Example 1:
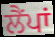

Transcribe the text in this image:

ਲੈਂਪਾਂ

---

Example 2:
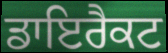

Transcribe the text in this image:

ਡਾਇਰੈਕਟ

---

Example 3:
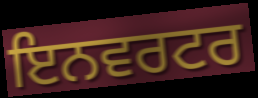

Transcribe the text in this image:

ਇਨਵਰਟਰ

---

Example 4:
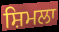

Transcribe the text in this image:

ਸ਼ਿਮਲਾ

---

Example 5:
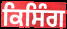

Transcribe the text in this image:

ਕਿਸਿੰਗ